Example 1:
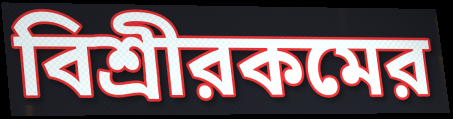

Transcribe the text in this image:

বিশ্রীরকমের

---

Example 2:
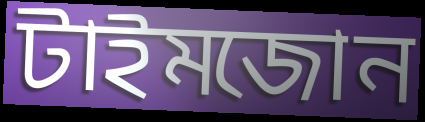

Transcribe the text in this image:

টাইমজোন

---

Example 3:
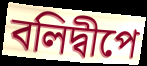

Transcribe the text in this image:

বলিদ্বীপে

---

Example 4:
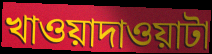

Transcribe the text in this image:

খাওয়াদাওয়াটা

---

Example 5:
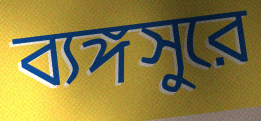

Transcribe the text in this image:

ব্যঙ্গসুরে